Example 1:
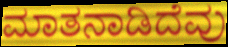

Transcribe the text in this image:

ಮಾತನಾಡಿದೆವು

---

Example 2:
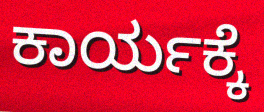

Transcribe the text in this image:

ಕಾರ್ಯಕ್ಕೆ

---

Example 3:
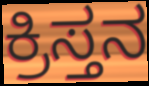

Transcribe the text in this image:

ಕ್ರಿಸ್ತನ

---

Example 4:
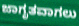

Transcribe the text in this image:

ಜಾಗೃತವಾಗಲು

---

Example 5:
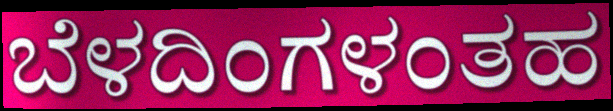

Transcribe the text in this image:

ಬೆಳದಿಂಗಳಂತಹ